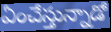
ఏంచేస్తున్నాడో